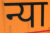
न्या